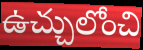
ఉచ్చులోంచి